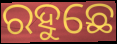
ରହୁଛେ